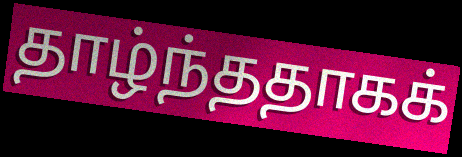
தாழ்ந்ததாகக்